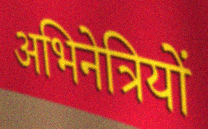
अभिनेत्रियों